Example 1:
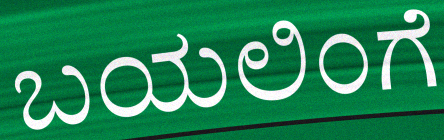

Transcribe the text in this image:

ಬಯಲಿಂಗೆ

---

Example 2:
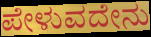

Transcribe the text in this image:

ಪೇಳುವದೇನು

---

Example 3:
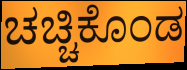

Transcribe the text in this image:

ಚಚ್ಚಿಕೊಂಡ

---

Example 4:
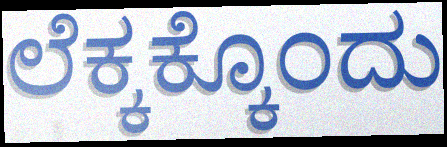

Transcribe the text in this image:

ಲೆಕ್ಕಕ್ಕೊಂದು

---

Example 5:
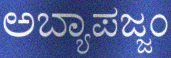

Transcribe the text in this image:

ಅಬ್ಯಾಪಜ್ಜಂ